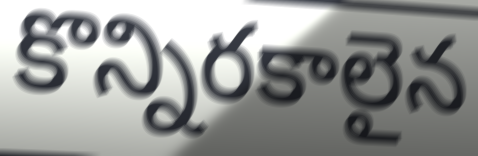
కొన్నిరకాలైన